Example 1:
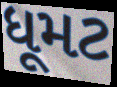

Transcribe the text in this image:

ધૂમટ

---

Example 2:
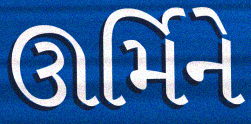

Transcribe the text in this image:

ઊર્મિને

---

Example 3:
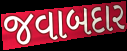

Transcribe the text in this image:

જવાબદાર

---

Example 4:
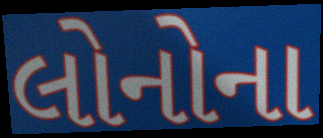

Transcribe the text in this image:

લોનોના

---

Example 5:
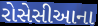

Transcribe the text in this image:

રોસેસીઆના